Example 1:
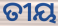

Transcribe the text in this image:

ତୀୟ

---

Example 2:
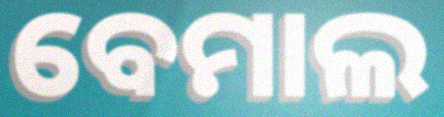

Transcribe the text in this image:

ବେମାଲ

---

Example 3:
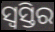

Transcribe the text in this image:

ସ୍ଵସ୍ତିର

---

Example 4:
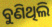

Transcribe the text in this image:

ବୁଣିଥିଲି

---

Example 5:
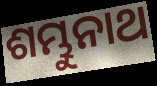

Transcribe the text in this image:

ଶମ୍ଭୁନାଥ